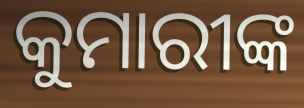
କୁମାରୀଙ୍କ